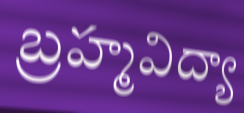
బ్రహ్మవిద్యా